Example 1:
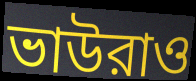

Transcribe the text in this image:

ভাউরাও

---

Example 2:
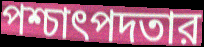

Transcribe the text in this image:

পশ্চাৎপদতার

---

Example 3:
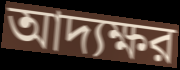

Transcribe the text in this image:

আদ্যক্ষর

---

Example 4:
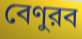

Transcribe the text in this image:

বেণুরব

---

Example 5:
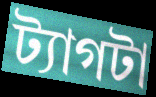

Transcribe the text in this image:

ট্যাগটা